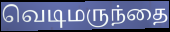
வெடிமருந்தை